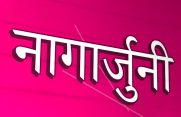
नागार्जुनी